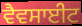
ਵੈਵਸਾਈਟ